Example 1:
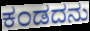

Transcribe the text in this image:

ಕಂಡದನು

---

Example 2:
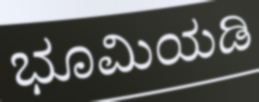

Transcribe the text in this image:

ಭೂಮಿಯಡಿ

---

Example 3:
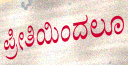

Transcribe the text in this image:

ಪ್ರೀತಿಯಿಂದಲೂ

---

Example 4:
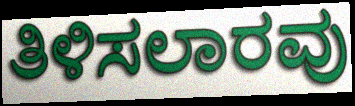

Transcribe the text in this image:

ತಿಳಿಸಲಾರವು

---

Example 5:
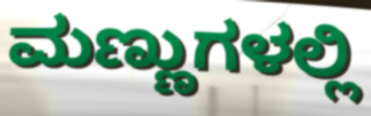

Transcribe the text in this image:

ಮಣ್ಣುಗಳಲ್ಲಿ